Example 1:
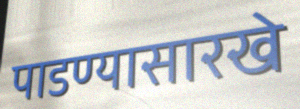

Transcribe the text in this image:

पाडण्यासारखे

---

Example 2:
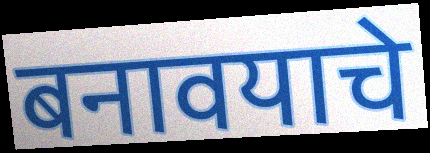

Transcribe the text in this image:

बनावयाचे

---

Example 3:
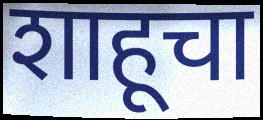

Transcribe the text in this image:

शाहूचा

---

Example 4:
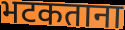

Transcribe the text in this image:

भटकताना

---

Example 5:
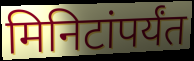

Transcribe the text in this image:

मिनिटांपर्यंत